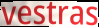
vestras